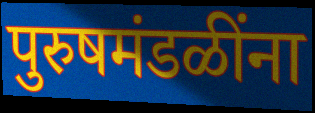
पुरुषमंडळींना